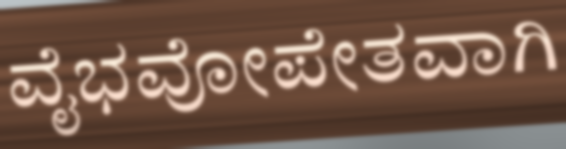
ವೈಭವೋಪೇತವಾಗಿ